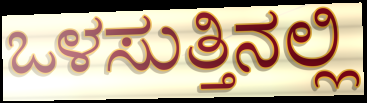
ಒಳಸುತ್ತಿನಲ್ಲಿ